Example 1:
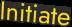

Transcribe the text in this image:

Initiate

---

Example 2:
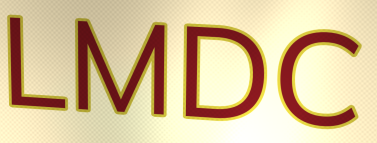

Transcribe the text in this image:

LMDC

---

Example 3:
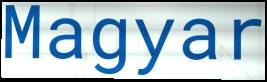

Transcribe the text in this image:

Magyar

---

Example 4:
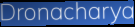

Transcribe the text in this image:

Dronacharya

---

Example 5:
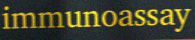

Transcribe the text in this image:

immunoassay